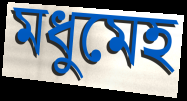
মধুমেহ